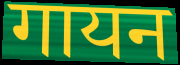
गायन